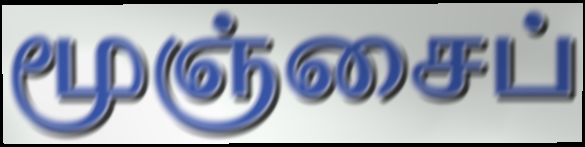
மூஞ்சைப்